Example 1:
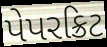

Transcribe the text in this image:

પેપરક્રિટ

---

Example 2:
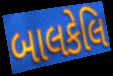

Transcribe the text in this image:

બાલકેલિ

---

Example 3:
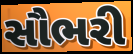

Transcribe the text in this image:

સૌભરી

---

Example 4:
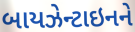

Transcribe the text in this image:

બાયઝેન્ટાઇનને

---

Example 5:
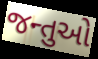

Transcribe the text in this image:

જન્તુઓ